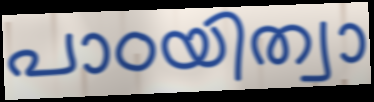
പാഠയിത്വാ